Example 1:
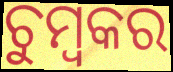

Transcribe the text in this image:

ଚୁମ୍ବକର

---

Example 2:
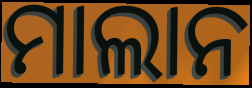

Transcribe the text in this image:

ମାଲାନ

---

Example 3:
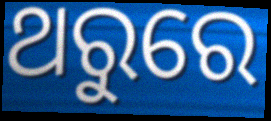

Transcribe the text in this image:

ଥରୁରେ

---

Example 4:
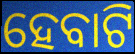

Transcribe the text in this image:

ହେବାଟି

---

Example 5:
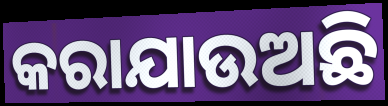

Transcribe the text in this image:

କରାଯାଉଅଛି